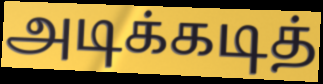
அடிக்கடித்